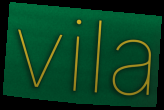
vila